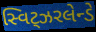
સ્વિટ્ઝરલેન્ડે